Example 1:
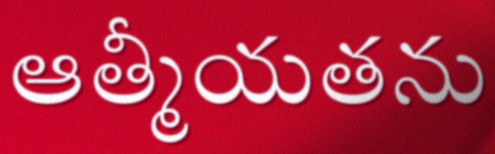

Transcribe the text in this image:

ఆత్మీయతను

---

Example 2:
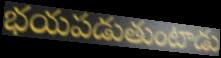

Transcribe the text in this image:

భయపడుతుంటాడు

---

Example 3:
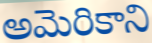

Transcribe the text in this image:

అమెరికాని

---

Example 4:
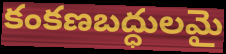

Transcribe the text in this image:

కంకణబద్ధులమై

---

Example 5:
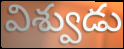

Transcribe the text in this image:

విశ్వుడు